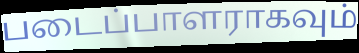
படைப்பாளராகவும்